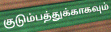
குடும்பத்துக்காகவும்